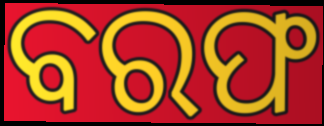
ବରଫ